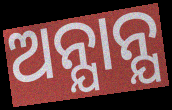
ଅନ୍ଯାନ୍ଯ